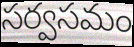
సర్వసమం